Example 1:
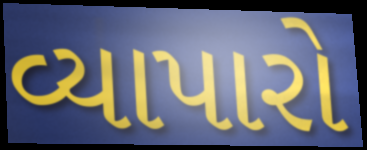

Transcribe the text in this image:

વ્યાપારો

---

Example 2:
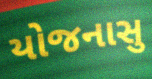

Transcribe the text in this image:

યોજનાસુ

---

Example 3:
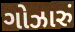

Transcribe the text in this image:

ગોઝારું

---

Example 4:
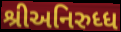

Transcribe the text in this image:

શ્રીઅનિરુધ્ધ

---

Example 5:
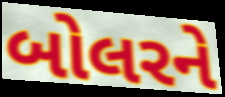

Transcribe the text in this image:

બોલરને